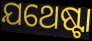
ଯଥେଷ୍ଟା